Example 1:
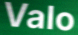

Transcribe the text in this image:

Valo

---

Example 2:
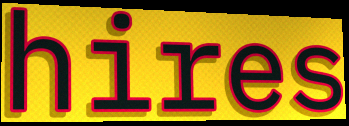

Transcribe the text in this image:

hires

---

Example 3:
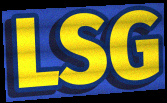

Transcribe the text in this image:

LSG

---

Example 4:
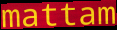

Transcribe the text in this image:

mattam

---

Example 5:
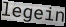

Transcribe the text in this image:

legein